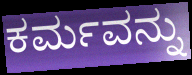
ಕರ್ಮವನ್ನು